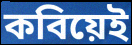
কবিয়েই